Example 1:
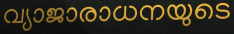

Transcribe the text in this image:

വ്യാജാരാധനയുടെ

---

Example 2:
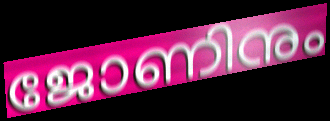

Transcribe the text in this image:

ജോണിനും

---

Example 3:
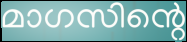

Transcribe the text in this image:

മാഗസിന്റെ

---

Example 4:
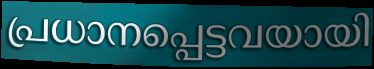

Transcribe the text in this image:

പ്രധാനപ്പെട്ടവയായി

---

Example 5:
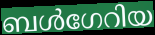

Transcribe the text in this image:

ബൾഗേറിയ